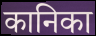
कानिका